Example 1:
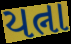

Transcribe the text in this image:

યત્ના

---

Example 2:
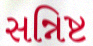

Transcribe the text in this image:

સન્નિષ્ટ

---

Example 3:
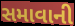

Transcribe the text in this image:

સમાવાની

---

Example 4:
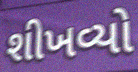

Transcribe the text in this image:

શીખવ્યો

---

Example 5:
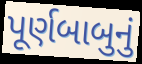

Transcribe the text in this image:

પૂર્ણબાબુનું